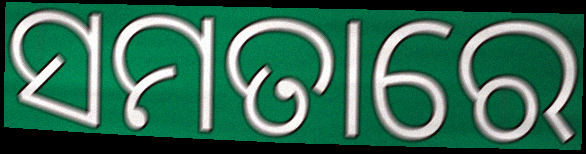
ସମତାରେ